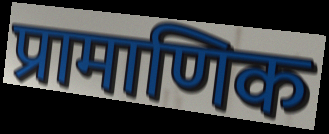
प्रामाणिक